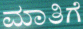
ಮಾತಿಗೆ